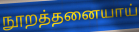
நூறத்தனையாய்